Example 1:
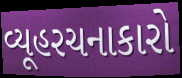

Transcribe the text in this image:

વ્યૂહરચનાકારો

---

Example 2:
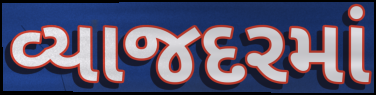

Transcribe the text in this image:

વ્યાજદરમાં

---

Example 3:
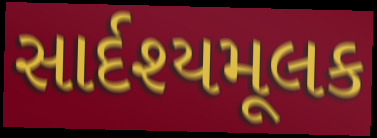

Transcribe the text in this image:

સાર્દશ્યમૂલક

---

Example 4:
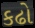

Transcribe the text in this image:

કઢો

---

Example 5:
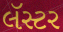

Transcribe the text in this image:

લૅસ્ટર